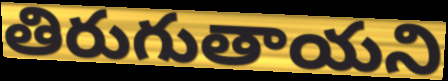
తిరుగుతాయని